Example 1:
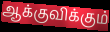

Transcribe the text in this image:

ஆக்குவிக்கும்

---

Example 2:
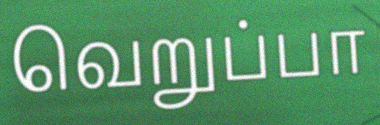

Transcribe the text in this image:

வெறுப்பா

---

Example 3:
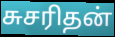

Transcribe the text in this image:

சுசரிதன்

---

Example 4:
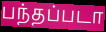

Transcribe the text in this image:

பந்தப்படா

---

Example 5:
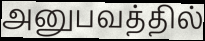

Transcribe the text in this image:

அனுபவத்தில்